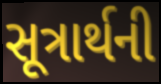
સૂત્રાર્થની